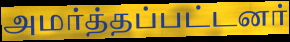
அமர்த்தப்பட்டனர்